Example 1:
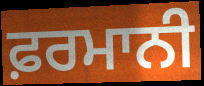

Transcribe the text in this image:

ਫ਼ਰਮਾਨੀ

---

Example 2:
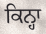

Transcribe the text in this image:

ਕਿਨ੍ਹਾ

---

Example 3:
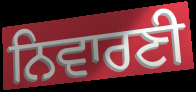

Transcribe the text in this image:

ਨਿਵਾਰਣੀ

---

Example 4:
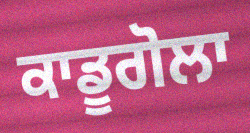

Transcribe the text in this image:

ਕਾਡੂਗੋਲਾ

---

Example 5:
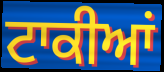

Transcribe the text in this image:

ਟਾਕੀਆਂ